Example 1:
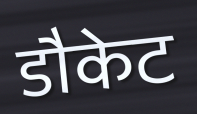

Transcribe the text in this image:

डौकेट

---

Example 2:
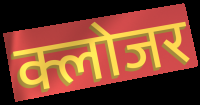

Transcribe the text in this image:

क्लोजर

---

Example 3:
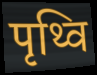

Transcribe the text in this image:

पृथ्वि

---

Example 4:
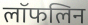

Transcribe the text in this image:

लॉफलिन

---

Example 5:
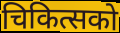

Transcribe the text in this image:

चिकित्सको